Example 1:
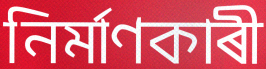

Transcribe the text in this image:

নিৰ্মাণকাৰী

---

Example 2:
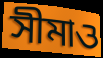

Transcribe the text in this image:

সীমাও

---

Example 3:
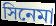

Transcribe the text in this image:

সিনেমা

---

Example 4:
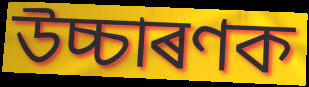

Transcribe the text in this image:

উচ্চাৰণক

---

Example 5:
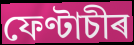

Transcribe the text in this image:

ফেণ্টাচীৰ